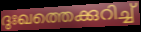
ദുഃഖത്തെക്കുറിച്ച്